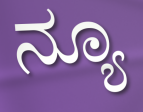
ನ್ಯೂ